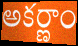
అకర్ణాం